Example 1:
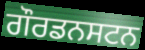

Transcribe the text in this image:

ਗੌਰਡਨਸਟਨ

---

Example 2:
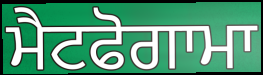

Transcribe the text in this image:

ਮੈਟਫੋਗਾਮਾ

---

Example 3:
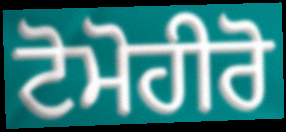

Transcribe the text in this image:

ਟੋਮੋਹੀਰੋ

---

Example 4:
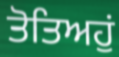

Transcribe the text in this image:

ਤੋਤਿਅਹੁਂ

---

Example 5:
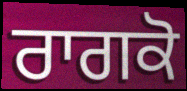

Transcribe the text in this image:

ਰਾਗਕੋ